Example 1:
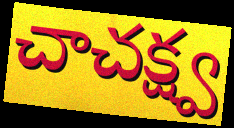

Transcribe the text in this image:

చాచక్ష్వ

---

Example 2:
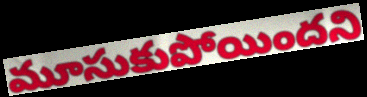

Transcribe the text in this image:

మూసుకుపోయిందని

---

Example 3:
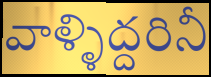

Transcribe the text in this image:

వాళ్ళిద్దరినీ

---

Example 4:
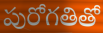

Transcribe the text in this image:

పురోగతితో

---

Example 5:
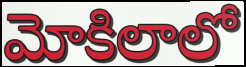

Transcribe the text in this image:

మోకిలాలో